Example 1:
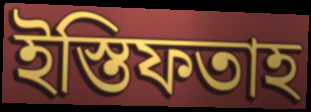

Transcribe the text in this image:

ইস্তিফতাহ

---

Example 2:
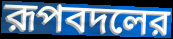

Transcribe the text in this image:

রূপবদলের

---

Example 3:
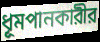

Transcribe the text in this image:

ধূমপানকারীর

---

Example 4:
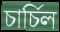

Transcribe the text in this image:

চার্চিল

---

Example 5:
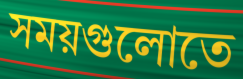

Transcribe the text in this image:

সময়গুলোতে